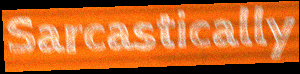
Sarcastically